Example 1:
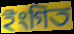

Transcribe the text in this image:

ইংগিত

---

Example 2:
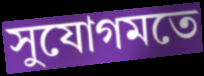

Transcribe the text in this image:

সুযোগমতে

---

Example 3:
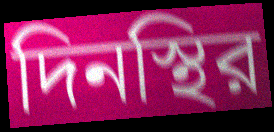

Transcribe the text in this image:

দিনস্থির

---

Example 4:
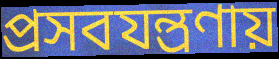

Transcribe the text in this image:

প্রসবযন্ত্রণায়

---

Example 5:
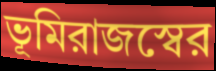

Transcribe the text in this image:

ভূমিরাজস্বের